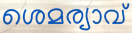
ശെമര്യാവ്